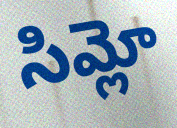
సిమ్లో